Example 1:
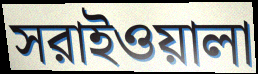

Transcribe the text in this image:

সরাইওয়ালা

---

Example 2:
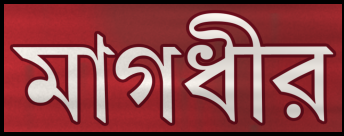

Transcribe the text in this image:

মাগধীর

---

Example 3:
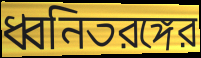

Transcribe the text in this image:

ধ্বনিতরঙ্গের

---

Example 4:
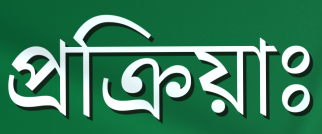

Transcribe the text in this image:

প্রক্রিয়াঃ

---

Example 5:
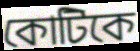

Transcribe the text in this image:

কোটিকে